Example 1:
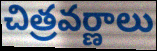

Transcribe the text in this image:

చిత్రవర్ణాలు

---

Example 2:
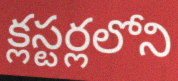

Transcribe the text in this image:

క్లస్టర్లలోని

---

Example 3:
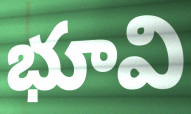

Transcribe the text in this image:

భూవి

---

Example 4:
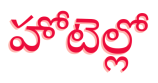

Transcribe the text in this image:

హోటెల్లో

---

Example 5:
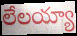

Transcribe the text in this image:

లేలయ్యా